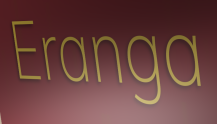
Eranga